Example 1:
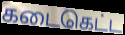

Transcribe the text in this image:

கடைகெட்ட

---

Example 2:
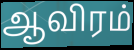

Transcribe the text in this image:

ஆவிரம்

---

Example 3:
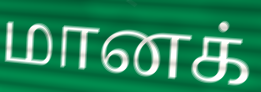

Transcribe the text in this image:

மானக்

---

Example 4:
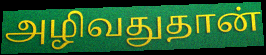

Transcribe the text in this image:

அழிவதுதான்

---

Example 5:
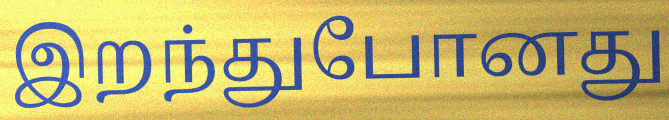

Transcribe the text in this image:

இறந்துபோனது